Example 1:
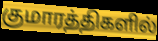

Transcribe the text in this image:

குமாரத்திகளில்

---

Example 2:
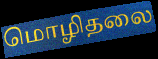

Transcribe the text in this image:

மொழிதலை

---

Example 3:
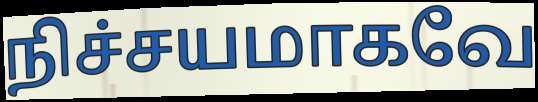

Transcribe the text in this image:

நிச்சயமாகவே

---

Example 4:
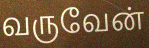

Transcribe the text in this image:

வருவேன்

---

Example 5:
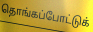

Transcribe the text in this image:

தொங்கப்போட்டுக்